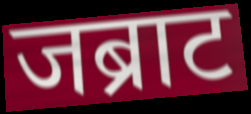
जब्राट